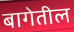
बागेतील